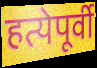
हत्येपूर्वी